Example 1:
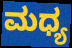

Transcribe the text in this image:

ಮಧ್ಯ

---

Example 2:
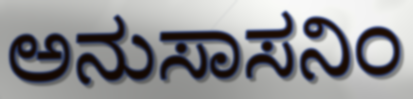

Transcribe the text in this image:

ಅನುಸಾಸನಿಂ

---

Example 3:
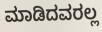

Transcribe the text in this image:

ಮಾಡಿದವರಲ್ಲ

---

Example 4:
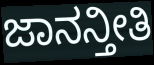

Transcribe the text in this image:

ಜಾನನ್ತೀತಿ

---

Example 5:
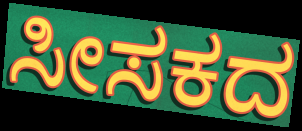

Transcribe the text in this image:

ಸೀಸಕದ